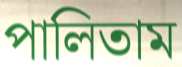
পালিতাম